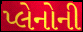
પ્લેનોની